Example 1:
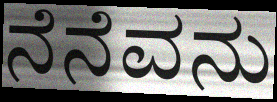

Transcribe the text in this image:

ನೆನೆವನು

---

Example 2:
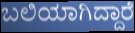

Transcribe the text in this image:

ಬಲಿಯಾಗಿದ್ದಾರೆ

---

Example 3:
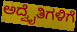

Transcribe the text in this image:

ಅದ್ವೈತಿಗಳಿಗೆ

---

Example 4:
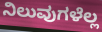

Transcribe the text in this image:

ನಿಲುವುಗಳೆಲ್ಲ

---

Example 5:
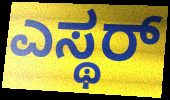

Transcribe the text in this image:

ಎಸ್ಥರ್